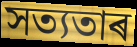
সত্যতাৰ